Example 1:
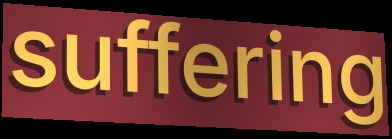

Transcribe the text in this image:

suffering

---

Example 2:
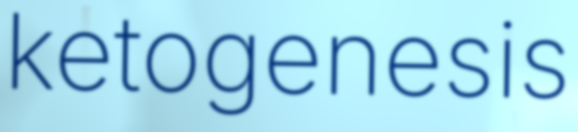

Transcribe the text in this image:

ketogenesis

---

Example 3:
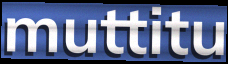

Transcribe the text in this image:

muttitu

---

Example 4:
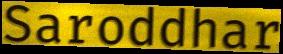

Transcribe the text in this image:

Saroddhar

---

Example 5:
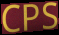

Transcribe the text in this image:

CPS